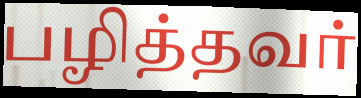
பழித்தவர்